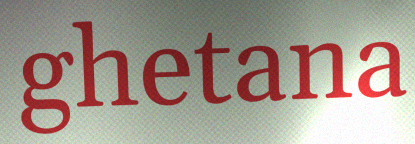
ghetana